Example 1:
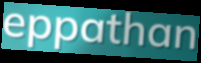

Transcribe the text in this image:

eppathan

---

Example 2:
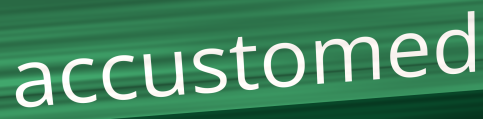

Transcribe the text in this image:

accustomed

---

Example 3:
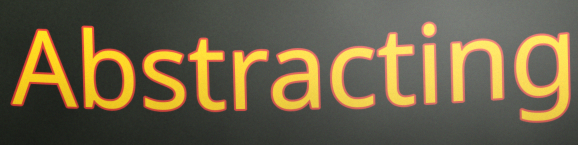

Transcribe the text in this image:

Abstracting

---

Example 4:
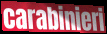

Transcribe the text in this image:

carabinieri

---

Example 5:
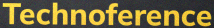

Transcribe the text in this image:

Technoference